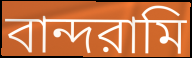
বান্দরামি